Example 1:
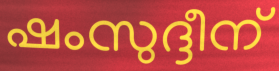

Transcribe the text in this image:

ഷംസുദ്ദീന്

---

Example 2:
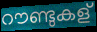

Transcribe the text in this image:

റൗണ്ടുകള്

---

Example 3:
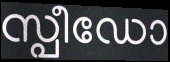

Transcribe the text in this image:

സ്പീഡോ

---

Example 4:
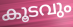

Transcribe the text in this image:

കൂടവും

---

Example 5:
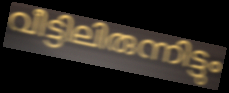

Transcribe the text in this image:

വീട്ടിലിരുന്നിട്ടും